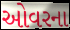
ઓવરના